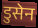
डुसेन